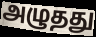
அழுதது